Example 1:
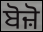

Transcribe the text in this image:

ਬੋਜ਼ੋ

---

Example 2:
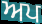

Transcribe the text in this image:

ਅਪ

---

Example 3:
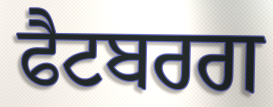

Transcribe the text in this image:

ਫੈਟਬਰਗ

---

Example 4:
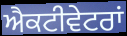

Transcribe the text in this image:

ਐਕਟੀਵੇਟਰਾਂ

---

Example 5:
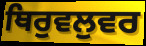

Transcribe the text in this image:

ਥਿਰੁਵਲੁਵਰ